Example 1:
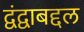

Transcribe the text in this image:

द्वंद्वाबद्दल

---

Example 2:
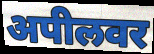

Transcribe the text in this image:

अपीलवर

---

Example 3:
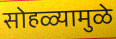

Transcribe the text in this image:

सोहळ्यामुळे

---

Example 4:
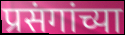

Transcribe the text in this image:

प्रसंगांच्या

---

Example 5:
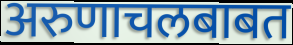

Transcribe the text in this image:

अरुणाचलबाबत